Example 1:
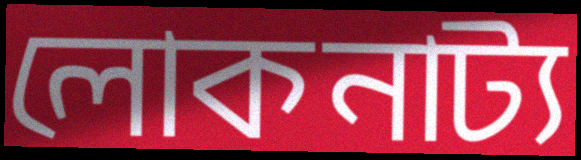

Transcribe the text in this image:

লোকনাট্য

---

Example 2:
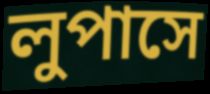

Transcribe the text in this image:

লুপাসে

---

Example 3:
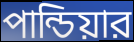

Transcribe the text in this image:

পান্ডিয়ার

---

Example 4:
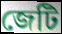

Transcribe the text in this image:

জেটি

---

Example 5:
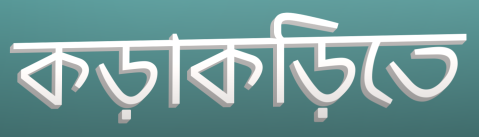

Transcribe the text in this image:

কড়াকড়িতে